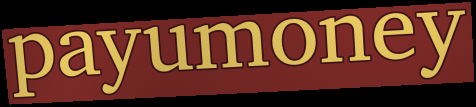
payumoney